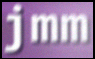
jmm